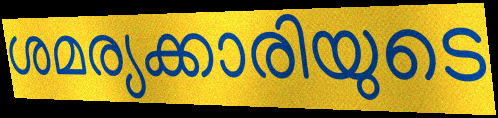
ശമര്യക്കാരിയുടെ